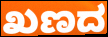
ಖಣದ